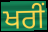
ਖਰੀਂ